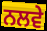
ਨਲਵੇ